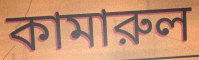
কামারুল